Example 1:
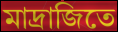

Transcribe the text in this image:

মাদ্রাজিতে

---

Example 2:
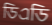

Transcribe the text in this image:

ডিএডি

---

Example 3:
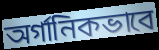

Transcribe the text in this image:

অর্গানিকভাবে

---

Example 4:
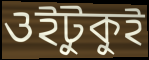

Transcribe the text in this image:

ওইটুকুই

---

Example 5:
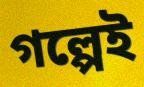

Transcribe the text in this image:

গল্পেই